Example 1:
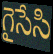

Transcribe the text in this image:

గైసేసి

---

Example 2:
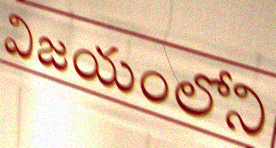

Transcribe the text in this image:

విజయంలోని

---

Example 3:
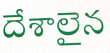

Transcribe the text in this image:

దేశాలైన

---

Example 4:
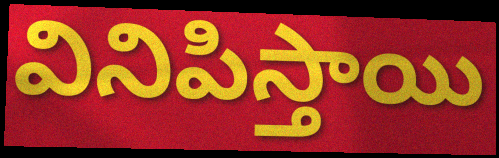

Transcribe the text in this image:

వినిపిస్తాయి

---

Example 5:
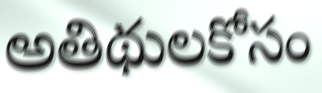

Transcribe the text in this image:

అతిథులకోసం